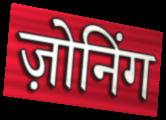
ज़ोनिंग